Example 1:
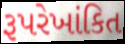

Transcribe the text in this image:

રૂપરેખાંકિત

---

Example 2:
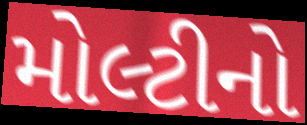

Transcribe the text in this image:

મોલ્ટીનો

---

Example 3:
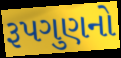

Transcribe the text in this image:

રૂપગુણનો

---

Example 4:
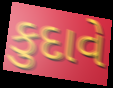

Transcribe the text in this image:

કુદાવે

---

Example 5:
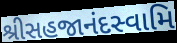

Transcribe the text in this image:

શ્રીસહજાનંદસ્વામિ